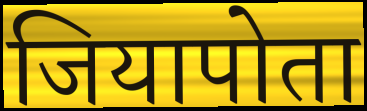
जियापोता